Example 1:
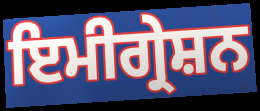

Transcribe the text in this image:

ਇਮੀਗ੍ਰੇਸ਼ਨ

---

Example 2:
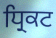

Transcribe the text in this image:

ਧ੍ਰਿਕਟ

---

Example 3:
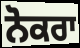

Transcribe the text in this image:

ਨੋਕਰਾ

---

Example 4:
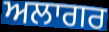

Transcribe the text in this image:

ਅਲਾਗਰ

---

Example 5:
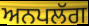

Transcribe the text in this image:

ਅਨਪਲੱਗ